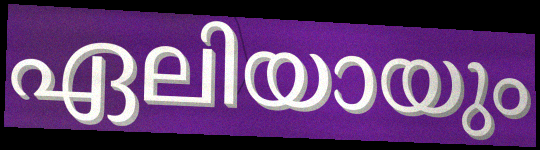
ഏലിയായും